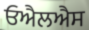
ਓਐਲਐਸ